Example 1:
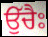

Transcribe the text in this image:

ਉੱਚੈਃ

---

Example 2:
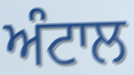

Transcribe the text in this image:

ਅੰਟਾਲ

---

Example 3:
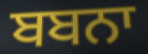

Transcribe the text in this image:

ਬਬਨਾ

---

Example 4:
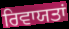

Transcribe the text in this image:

ਰਿਵਾਯਤਾਂ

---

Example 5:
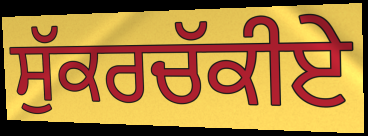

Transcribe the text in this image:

ਸੁੱਕਰਚੱਕੀਏ